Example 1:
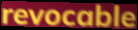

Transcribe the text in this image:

revocable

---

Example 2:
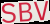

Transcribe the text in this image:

SBV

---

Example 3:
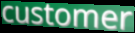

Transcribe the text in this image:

customer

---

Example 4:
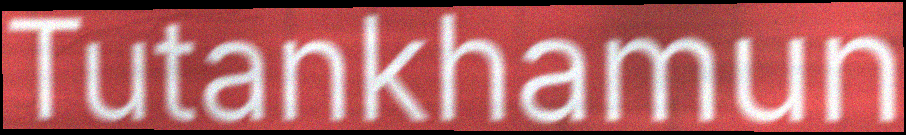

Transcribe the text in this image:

Tutankhamun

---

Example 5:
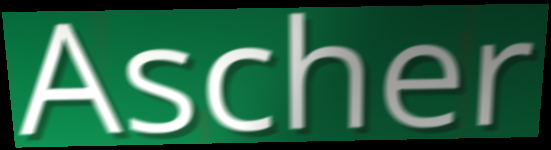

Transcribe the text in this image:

Ascher